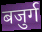
बजुर्ग